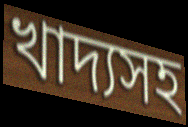
খাদ্যসহ